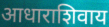
आधाराशिवाय